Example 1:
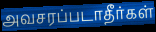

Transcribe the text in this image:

அவசரப்படாதீர்கள்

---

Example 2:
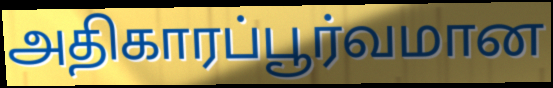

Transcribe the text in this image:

அதிகாரப்பூர்வமான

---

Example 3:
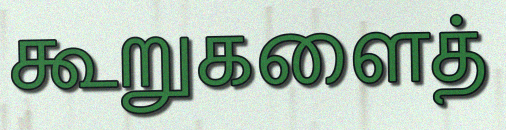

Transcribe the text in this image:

கூறுகளைத்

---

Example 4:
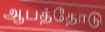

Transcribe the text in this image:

ஆபத்தோடு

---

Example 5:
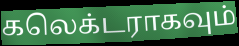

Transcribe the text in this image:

கலெக்டராகவும்